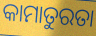
କାମାତୁରତା